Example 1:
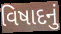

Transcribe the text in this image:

વિષાદનું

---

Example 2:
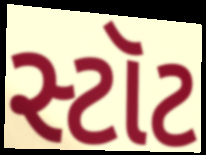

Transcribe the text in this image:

સ્ટૉટ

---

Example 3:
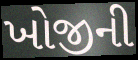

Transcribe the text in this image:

ખોજીની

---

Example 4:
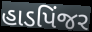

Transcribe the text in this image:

હાડપિંજર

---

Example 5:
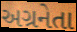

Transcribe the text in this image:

અગ્રનેતા